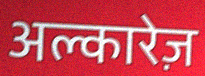
अल्कारेज़